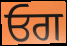
ਓਗ